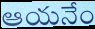
ఆయనేం